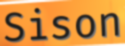
Sison